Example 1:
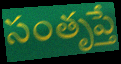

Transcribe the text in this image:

సంతృప్తే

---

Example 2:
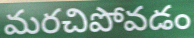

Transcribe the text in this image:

మరచిపోవడం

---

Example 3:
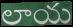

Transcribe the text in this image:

లాయ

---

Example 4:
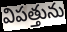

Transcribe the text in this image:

విపత్తును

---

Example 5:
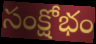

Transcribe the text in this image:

సంక్షోభం